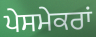
ਪੇਸਮੇਕਰਾਂ